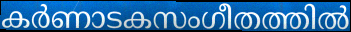
കർണാടകസംഗീതത്തിൽ